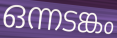
ഒന്നടങ്കം